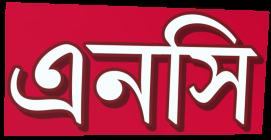
এনসি